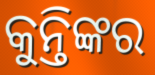
କୁନ୍ତିଙ୍କର